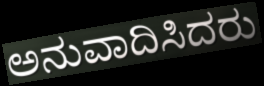
ಅನುವಾದಿಸಿದರು